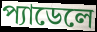
প্যাডেলে